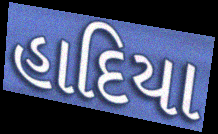
હાદિયા